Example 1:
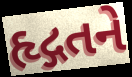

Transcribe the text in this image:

હૃદ્ગતને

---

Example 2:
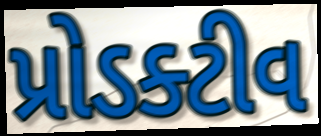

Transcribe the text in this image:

પ્રોડક્ટીવ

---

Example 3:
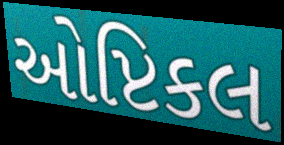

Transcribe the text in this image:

ઓપ્ટિકલ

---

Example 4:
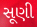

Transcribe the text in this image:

સૂણી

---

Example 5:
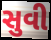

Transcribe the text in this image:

સુવી